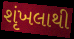
શૃંખલાથી